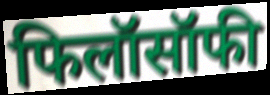
फिलॉसॉफी